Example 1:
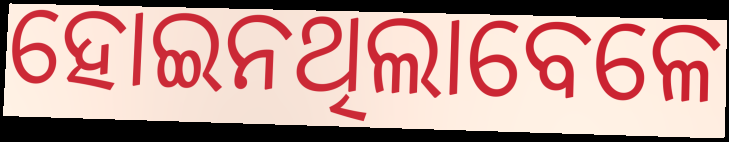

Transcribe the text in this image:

ହୋଇନଥିଲାବେଳେ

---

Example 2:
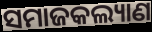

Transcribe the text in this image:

ସମାଜକଲ୍ୟାଣ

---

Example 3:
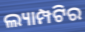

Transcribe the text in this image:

ଲ୍ୟାମ୍ପଟିର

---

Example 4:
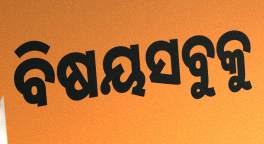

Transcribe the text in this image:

ବିଷୟସବୁକୁ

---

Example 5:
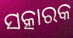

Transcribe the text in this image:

ସତ୍କାରକ